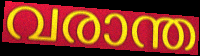
വരാന്ത